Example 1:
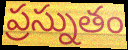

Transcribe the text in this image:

ప్రస్నుతం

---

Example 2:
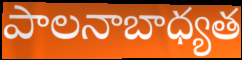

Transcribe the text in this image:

పాలనాబాధ్యత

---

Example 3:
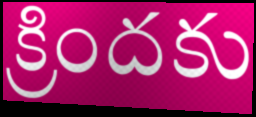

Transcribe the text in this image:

క్రిందకు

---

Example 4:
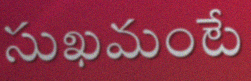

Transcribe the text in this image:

సుఖమంటే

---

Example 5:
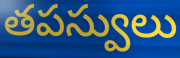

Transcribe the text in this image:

తపస్వులు